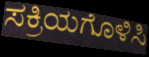
ಸಕ್ರಿಯಗೊಳಿಸಿ